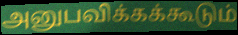
அனுபவிக்கக்கூடும்